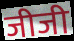
जीजी